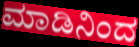
ಮಾಡಿನಿಂದ